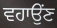
ਵਹਾਉਂਣ